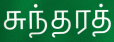
சுந்தரத்